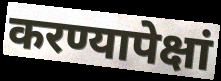
करण्यापेक्षां